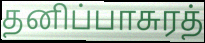
தனிப்பாசுரத்